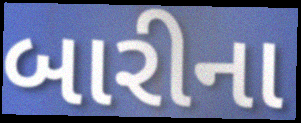
બારીના